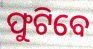
ଫୁଟିବେ